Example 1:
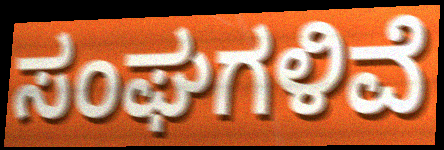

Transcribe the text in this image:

ಸಂಘಗಳಿವೆ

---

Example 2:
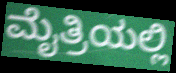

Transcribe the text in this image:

ಮೈತ್ರಿಯಲ್ಲಿ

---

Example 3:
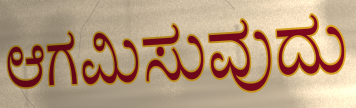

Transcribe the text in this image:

ಆಗಮಿಸುವುದು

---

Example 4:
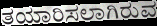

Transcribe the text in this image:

ತಯಾರಿಸಲಾಗಿರುವ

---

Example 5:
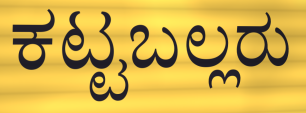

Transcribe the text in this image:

ಕಟ್ಟಬಲ್ಲರು